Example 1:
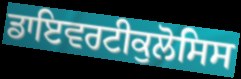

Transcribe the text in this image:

ਡਾਇਵਰਟੀਕੁਲੋਸਿਸ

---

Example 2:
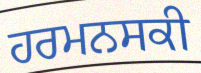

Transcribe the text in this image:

ਹਰਮਨਸਕੀ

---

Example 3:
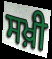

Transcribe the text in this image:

ਸਖ਼ੀ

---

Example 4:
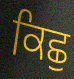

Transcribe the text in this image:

ਕਿਛੁ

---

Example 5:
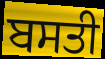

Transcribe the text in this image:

ਬਸਤੀ